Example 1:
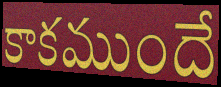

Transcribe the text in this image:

కాకముందే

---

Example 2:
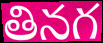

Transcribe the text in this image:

తినగ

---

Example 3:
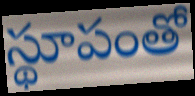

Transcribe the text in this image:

స్థూపంతో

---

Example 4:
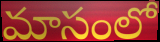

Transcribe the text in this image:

మాసంలో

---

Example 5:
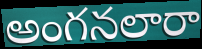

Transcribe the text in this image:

అంగనలారా